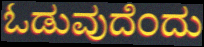
ಓಡುವುದೆಂದು